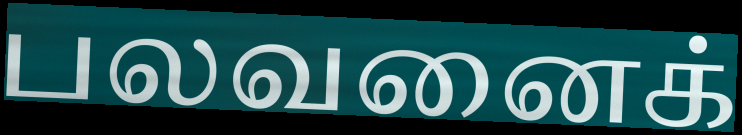
பலவனைக்